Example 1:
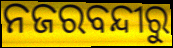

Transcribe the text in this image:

ନଜରବନ୍ଦୀରୁ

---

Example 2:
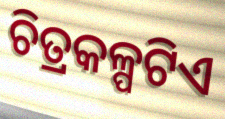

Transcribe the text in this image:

ଚିତ୍ରକଳ୍ପଟିଏ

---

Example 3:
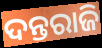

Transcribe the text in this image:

ଦନ୍ତରାଜି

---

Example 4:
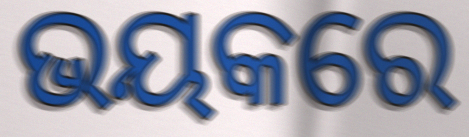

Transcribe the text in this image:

ଭୟକରେ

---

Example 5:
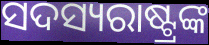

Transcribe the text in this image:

ସଦସ୍ୟରାଷ୍ଟ୍ରଙ୍କ